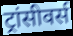
ट्रांसीवर्स